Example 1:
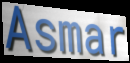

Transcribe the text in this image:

Asmar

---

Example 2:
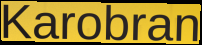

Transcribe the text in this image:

Karobran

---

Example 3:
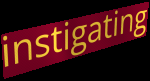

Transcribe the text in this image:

instigating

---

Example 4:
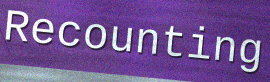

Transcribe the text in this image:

Recounting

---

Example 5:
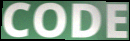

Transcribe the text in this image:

CODE